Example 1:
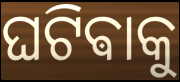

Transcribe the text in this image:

ଘଟିଵାକୁ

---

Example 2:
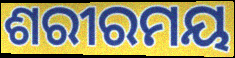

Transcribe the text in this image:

ଶରୀରମୟ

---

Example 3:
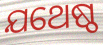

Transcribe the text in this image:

ଯଥେଷ୍ଠ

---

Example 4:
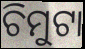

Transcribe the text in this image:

ଚିମୁଟା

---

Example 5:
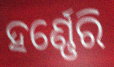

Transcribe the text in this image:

ହର୍ଣ୍ଣେରି